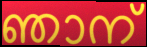
ഞാന്